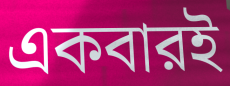
একবারই